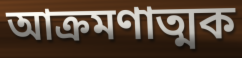
আক্ৰমণাত্মক